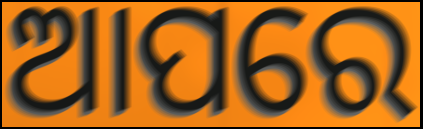
ଆପରେ